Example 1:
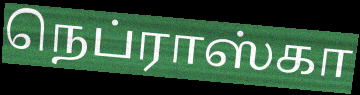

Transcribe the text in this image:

நெப்ராஸ்கா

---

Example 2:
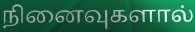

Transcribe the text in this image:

நினைவுகளால்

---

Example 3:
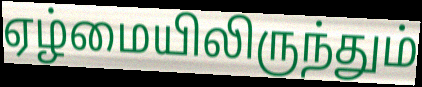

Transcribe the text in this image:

ஏழ்மையிலிருந்தும்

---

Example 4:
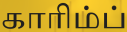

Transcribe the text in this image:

காரிம்ப்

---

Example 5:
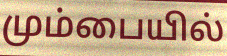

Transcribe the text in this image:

மும்பையில்